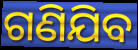
ଗଣିଯିବ